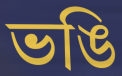
ভঙি